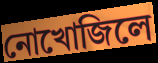
নোখোজিলে